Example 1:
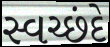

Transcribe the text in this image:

સ્વચ્છંદે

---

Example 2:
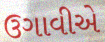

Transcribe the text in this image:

ઉગાવીએ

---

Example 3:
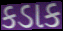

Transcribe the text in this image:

કડાક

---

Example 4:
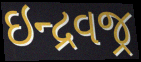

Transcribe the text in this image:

ઇન્દ્રવજ્ર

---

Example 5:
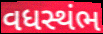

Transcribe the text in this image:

વધસ્થંભ